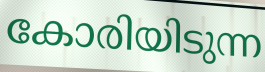
കോരിയിടുന്ന